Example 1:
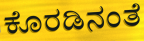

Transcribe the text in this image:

ಕೊರಡಿನಂತೆ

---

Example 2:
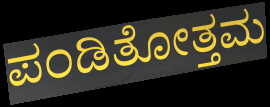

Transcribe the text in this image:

ಪಂಡಿತೋತ್ತಮ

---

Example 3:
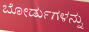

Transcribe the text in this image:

ಬೋರ್ಡುಗಳನ್ನು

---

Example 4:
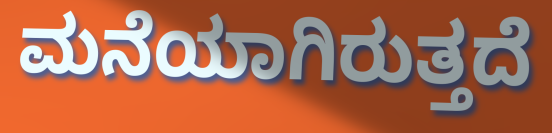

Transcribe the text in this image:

ಮನೆಯಾಗಿರುತ್ತದೆ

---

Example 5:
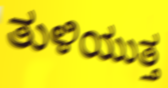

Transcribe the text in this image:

ತುಳಿಯುತ್ತ